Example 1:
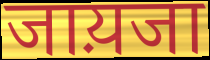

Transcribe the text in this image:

जाय़जा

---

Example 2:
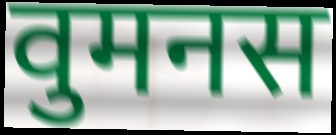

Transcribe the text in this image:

वुमनस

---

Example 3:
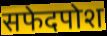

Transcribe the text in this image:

सफेदपोश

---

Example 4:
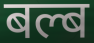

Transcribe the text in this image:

बल्‍ब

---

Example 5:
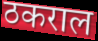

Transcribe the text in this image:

ठकराल